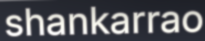
shankarrao